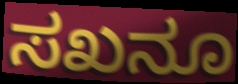
ಸಖನೂ